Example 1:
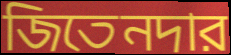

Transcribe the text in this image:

জিতেনদার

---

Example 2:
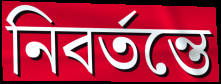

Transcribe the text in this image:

নিবর্তন্তে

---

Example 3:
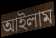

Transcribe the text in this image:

আইলাম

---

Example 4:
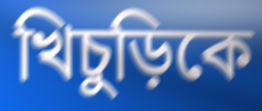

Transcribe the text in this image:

খিচুড়িকে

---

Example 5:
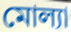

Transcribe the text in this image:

মোল্যা